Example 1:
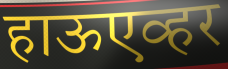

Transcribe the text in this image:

हाऊएव्हर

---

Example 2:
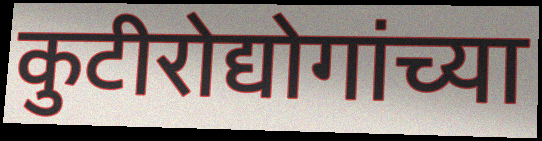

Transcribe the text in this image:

कुटीरोद्योगांच्या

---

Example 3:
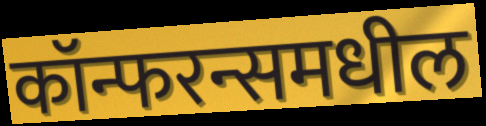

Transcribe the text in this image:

कॉन्फरन्समधील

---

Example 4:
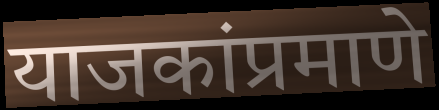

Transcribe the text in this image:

याजकांप्रमाणे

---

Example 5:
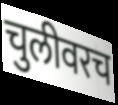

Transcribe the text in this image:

चुलीवरच